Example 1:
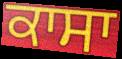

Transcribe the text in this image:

ਕਾਸਾ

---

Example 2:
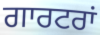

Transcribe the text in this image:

ਗਾਰਟਰਾਂ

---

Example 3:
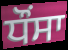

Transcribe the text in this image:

ਧੌਂਸਾ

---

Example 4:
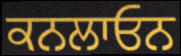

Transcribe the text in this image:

ਕਨਲਾਓਨ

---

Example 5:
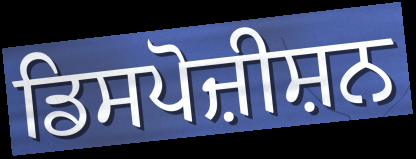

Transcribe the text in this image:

ਡਿਸਪੋਜ਼ੀਸ਼ਨ